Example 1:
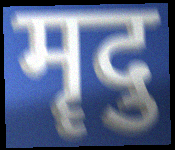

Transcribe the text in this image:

मॄदु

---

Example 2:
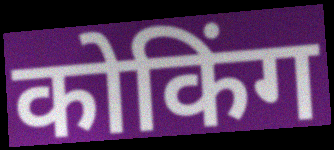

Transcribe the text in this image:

कोकिंग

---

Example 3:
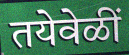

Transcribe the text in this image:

तयेवेळीं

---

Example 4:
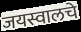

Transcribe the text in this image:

जयस्वालचे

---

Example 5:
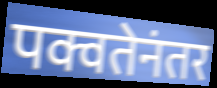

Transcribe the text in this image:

पक्वतेनंतर